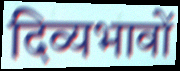
दिव्यभावों